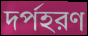
দর্পহরণ